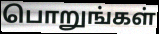
பொறுங்கள்